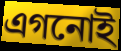
এগনোই